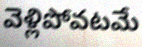
వెళ్లిపోవటమే